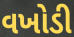
વખોડી